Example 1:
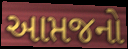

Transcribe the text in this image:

આપ્તજનો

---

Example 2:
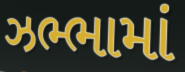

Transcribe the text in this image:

ઝભ્ભામાં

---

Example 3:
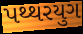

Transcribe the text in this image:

પથ્થરયુગ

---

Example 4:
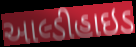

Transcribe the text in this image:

આલ્ડીહાઇડ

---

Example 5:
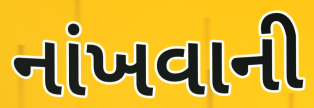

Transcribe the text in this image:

નાંખવાની